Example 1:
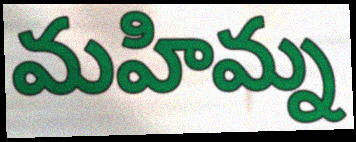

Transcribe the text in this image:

మహిమ్న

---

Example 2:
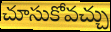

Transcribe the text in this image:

చూసుకోవచ్చు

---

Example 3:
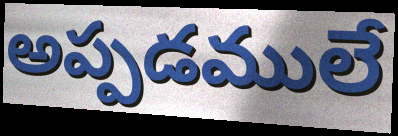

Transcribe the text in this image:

అప్పడములే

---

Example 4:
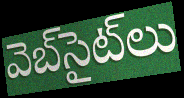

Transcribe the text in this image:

వెబ్‌సైట్‌లు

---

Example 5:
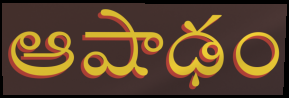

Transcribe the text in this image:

ఆషాఢం